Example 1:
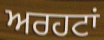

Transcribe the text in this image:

ਅਰਹਟਾਂ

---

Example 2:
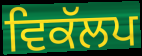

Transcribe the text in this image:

ਵਿਕੱਲਪ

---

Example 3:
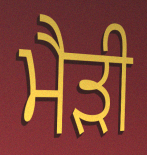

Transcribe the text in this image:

ਮੈੜੀ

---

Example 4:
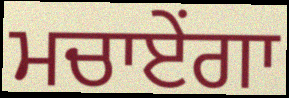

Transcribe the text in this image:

ਮਚਾਏਂਗਾ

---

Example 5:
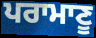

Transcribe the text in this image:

ਪਰਾਮਾਣੂ